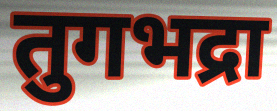
तुगभद्रा